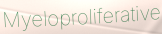
Myeloproliferative